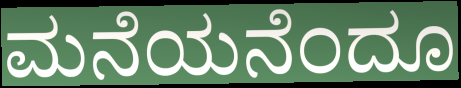
ಮನೆಯನೆಂದೂ